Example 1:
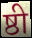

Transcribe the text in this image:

ष्ठी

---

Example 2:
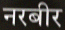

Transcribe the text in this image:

नरबीर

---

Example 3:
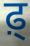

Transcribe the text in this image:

ड़्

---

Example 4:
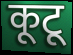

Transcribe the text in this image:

कूटू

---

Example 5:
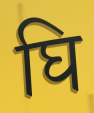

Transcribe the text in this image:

घि